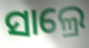
ସାଲ୍ରେ